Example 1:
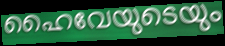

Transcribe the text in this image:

ഹൈവേയുടെയും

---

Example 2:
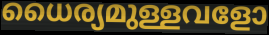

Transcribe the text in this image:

ധൈര്യമുള്ളവളോ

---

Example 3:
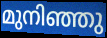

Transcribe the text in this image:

മുനിഞ്ഞു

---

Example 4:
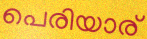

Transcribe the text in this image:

പെരിയാര്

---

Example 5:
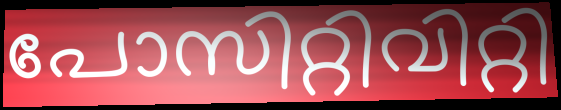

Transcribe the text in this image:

പോസിറ്റിവിറ്റി